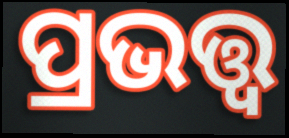
ପ୍ରଭତ୍ତ୍ଵ